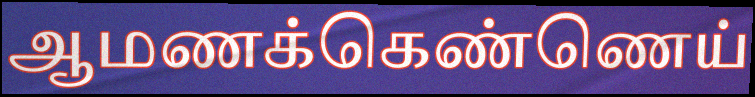
ஆமணக்கெண்ணெய்